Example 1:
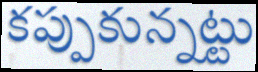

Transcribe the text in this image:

కప్పుకున్నట్టు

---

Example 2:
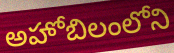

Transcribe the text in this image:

అహోబిలంలోని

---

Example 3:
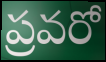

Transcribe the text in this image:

ప్రవరో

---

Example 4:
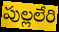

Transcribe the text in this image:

పుల్లలేరి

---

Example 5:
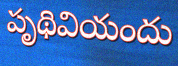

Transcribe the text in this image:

పృథివియందు